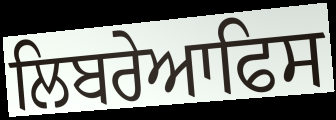
ਲਿਬਰੇਆਫਿਸ